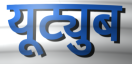
यूट्युब